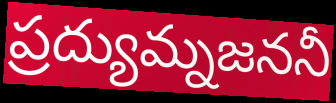
ప్రద్యుమ్నజననీ